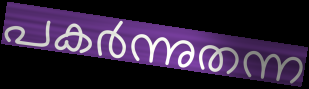
പകർന്നുതന്ന